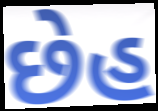
છેહ